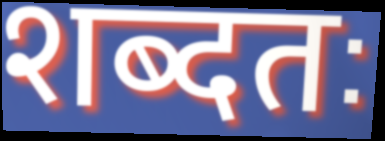
शब्दतः